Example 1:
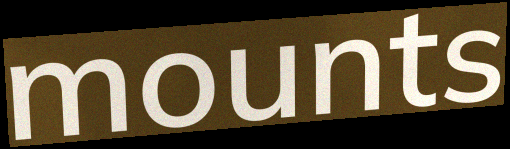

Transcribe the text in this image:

mounts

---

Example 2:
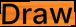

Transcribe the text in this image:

Draw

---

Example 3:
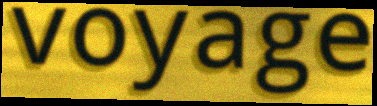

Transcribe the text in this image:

voyage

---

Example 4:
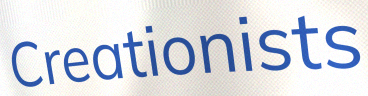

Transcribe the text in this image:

Creationists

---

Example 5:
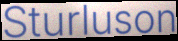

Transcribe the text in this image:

Sturluson